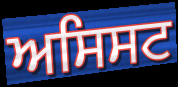
ਅਸਿਸਟ